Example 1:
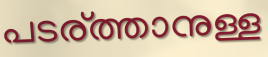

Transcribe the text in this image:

പടര്ത്താനുള്ള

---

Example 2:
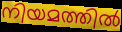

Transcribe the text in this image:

നിയമത്തിൽ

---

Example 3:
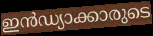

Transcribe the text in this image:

ഇൻഡ്യാക്കാരുടെ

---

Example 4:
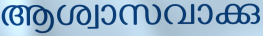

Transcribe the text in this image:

ആശ്വാസവാക്കു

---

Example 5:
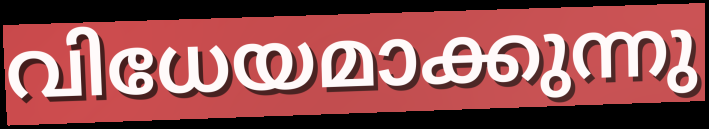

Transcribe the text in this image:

വിധേയമാക്കുന്നു